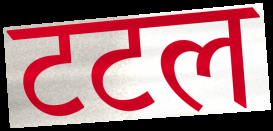
टटल